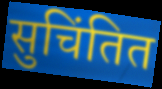
सुचिंतित